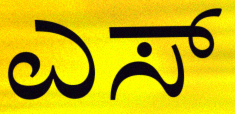
ಎಸ್